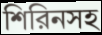
শিরিনসহ